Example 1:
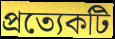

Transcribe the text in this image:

প্ৰত্যেকটি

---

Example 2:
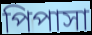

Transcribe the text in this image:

পিপাসা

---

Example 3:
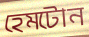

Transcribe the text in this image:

হেমটোন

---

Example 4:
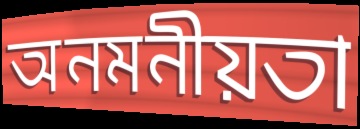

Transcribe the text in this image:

অনমনীয়তা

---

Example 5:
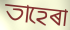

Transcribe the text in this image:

তাহেৰা